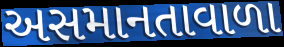
અસમાનતાવાળા